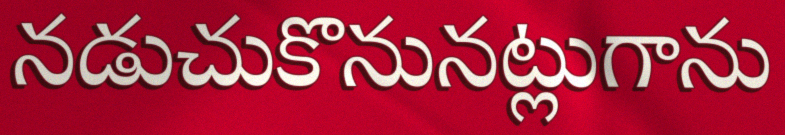
నడుచుకొనునట్లుగాను